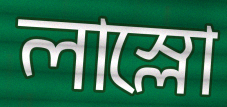
লাস্লো